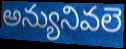
అన్యునివలె